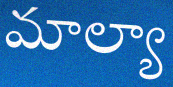
మాల్యా